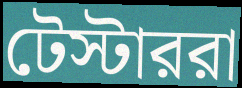
টেস্টাররা